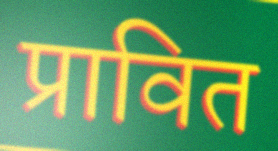
प्रावित